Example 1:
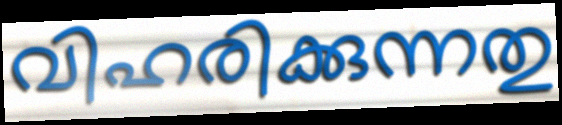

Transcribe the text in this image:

വിഹരിക്കുന്നതു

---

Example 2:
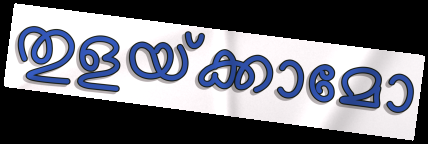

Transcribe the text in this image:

തുളയ്‌ക്കാമോ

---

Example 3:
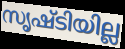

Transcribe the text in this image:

സൃഷ്ടിയില്ല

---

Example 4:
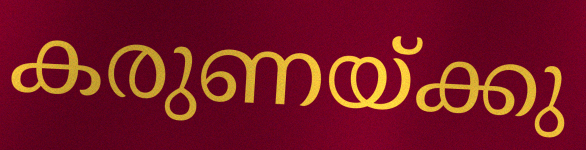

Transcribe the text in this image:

കരുണയ്ക്കു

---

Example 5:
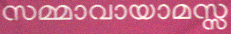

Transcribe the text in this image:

സമ്മാവായാമസ്സ